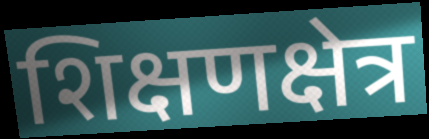
शिक्षणक्षेत्र